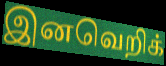
இனவெறிக்